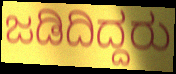
ಜಡಿದಿದ್ದರು